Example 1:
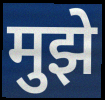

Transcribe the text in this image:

मुझे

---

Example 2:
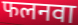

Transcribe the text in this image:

फलनवा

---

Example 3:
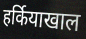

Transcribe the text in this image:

हर्कियाखाल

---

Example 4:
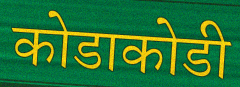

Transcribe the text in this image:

कोडाकोडी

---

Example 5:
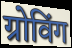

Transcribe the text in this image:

ग्रोविंग